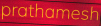
prathamesh